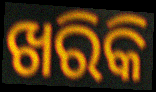
ଖରିକି